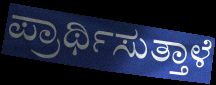
ಪ್ರಾರ್ಥಿಸುತ್ತಾಳೆ